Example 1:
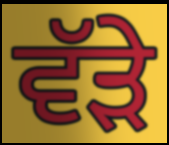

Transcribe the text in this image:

ਵੱਡ਼ੇ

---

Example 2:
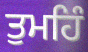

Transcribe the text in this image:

ਤੁਮਹਿੰ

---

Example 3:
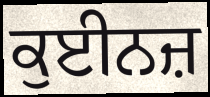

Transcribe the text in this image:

ਕੁਈਨਜ਼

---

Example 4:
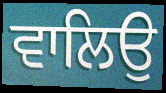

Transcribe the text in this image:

ਵਾਲਿਉ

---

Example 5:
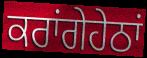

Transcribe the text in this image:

ਕਰਾਂਗੇਹੇਠਾਂ